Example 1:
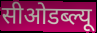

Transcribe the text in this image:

सीओडब्ल्यू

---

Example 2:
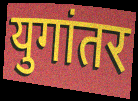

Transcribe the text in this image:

युगांतर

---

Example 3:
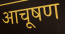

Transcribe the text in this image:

आचूषण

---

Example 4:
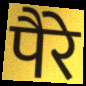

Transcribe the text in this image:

पैरे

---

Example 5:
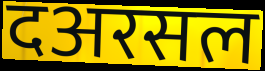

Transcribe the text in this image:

दअरसल